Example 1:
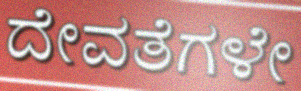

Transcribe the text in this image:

ದೇವತೆಗಳೇ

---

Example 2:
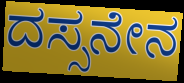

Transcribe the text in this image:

ದಸ್ಸನೇನ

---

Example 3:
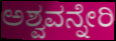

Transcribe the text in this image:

ಅಶ್ವವನ್ನೇರಿ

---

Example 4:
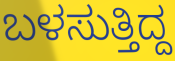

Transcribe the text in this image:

ಬಳಸುತ್ತಿದ್ದ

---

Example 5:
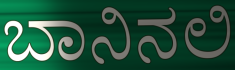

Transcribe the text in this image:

ಬಾನಿನಲಿ